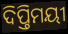
ଦିପ୍ତିମୟୀ